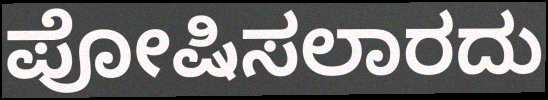
ಪೋಷಿಸಲಾರದು